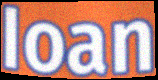
Ioan